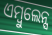
ଏମ୍ବୁଲେନ୍ସ